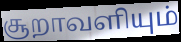
சூறாவளியும்